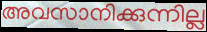
അവസാനിക്കുന്നില്ല